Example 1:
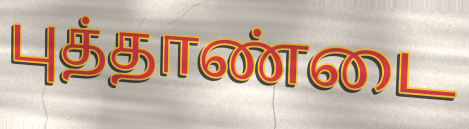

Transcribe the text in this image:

புத்தாண்டை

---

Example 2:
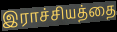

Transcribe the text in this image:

இராச்சியத்தை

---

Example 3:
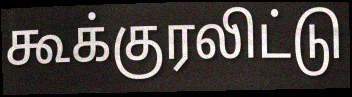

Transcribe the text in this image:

கூக்குரலிட்டு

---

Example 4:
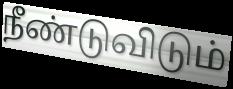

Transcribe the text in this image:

நீண்டுவிடும்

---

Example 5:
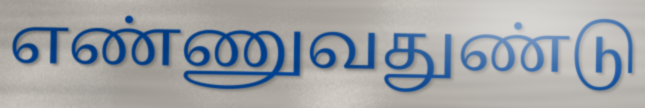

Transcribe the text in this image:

எண்ணுவதுண்டு